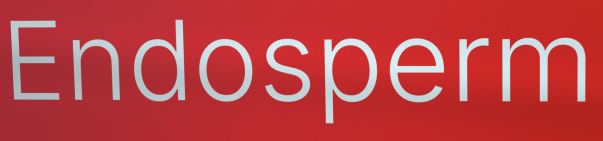
Endosperm